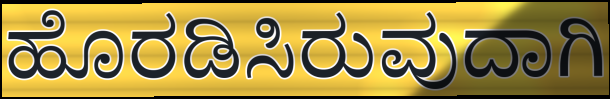
ಹೊರಡಿಸಿರುವುದಾಗಿ